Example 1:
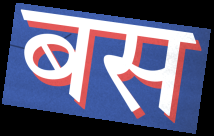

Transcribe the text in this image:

बस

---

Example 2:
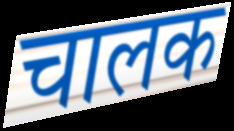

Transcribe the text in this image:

चालक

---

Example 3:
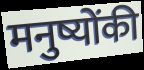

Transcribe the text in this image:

मनुष्योंकी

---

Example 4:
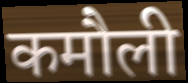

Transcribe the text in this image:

कमौली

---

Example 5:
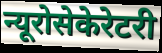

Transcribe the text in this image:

न्यूरोसेकेरेटरी